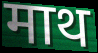
माथ